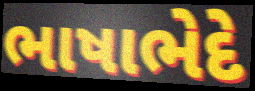
ભાષાભેદે